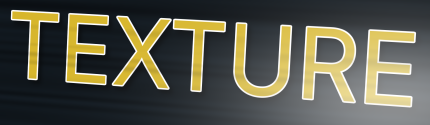
TEXTURE